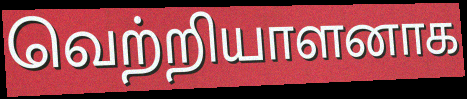
வெற்றியாளனாக